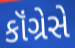
કૉંગ્રેસે